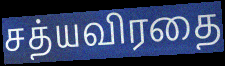
சத்யவிரதை